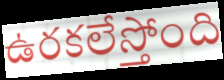
ఉరకలేస్తోంది